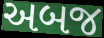
અબજ